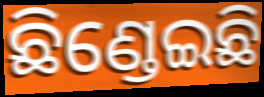
ଛିଣ୍ଡେଇଛି